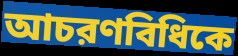
আচরণবিধিকে